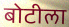
बोटीला